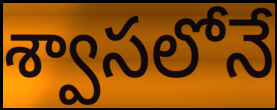
శ్వాసలోనే